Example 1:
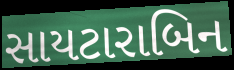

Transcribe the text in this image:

સાયટારાબિન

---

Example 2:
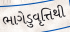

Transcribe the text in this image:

ભાગેડુવૃત્તિથી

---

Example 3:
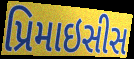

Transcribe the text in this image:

પ્રિમાઇસીસ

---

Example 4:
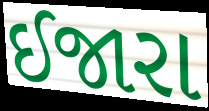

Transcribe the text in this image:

ઈજારા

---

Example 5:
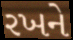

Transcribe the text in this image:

રખને